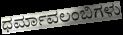
ಧರ್ಮಾವಲಂಬಿಗಳು